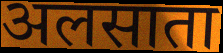
अलसाता